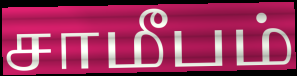
சாமீபம்